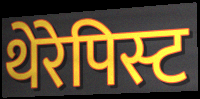
थेरेपिस्‍ट